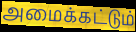
அமைக்கட்டும்